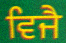
ਵਿਜੈ